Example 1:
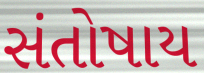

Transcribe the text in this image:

સંતોષાય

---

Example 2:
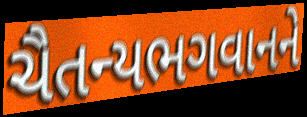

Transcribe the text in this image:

ચૈતન્યભગવાનને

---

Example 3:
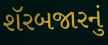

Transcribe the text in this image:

શૅરબજારનું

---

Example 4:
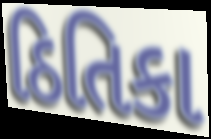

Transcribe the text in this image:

ઠિતિકા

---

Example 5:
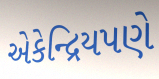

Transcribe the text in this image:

એકેન્દ્રિયપણે